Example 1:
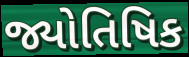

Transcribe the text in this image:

જ્યોતિષિક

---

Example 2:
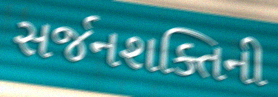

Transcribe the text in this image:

સર્જનશક્તિની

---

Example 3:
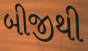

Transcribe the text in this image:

બીજીથી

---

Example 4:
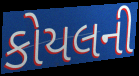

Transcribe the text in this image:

કોયલની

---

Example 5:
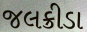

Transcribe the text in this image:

જલક્રીડા